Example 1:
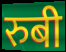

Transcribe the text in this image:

रुबी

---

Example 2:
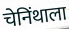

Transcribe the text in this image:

चेनिंथाला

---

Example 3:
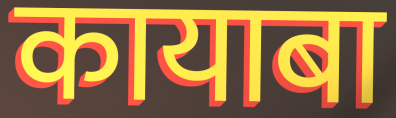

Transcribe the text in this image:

कायाबा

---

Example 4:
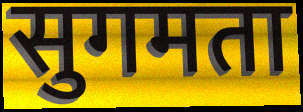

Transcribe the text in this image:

सुगमता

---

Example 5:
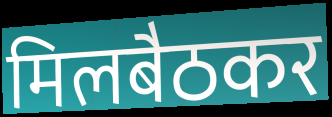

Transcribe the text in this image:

मिलबैठकर